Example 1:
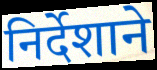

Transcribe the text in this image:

निर्देशाने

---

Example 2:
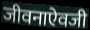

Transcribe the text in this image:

जीवनाऐवजी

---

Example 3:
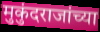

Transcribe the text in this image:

मुकुंदराजांच्या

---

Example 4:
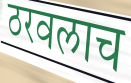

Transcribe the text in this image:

ठरवलाच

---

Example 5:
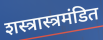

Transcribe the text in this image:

शस्त्रास्त्रमंडित